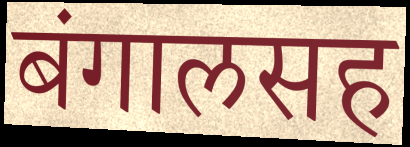
बंगालसह